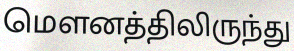
மௌனத்திலிருந்து